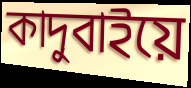
কাদুবাইয়ে